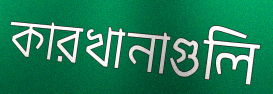
কারখানাগুলি